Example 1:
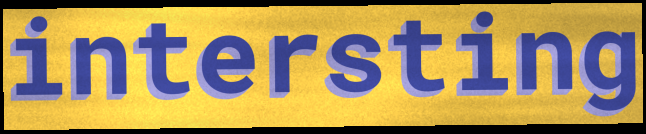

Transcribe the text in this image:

intersting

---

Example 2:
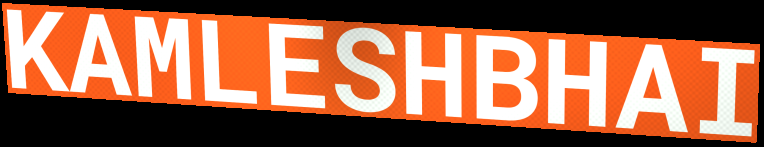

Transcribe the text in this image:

KAMLESHBHAI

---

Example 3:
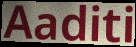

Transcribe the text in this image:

Aaditi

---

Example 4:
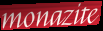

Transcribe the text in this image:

monazite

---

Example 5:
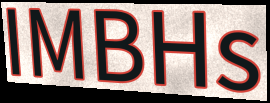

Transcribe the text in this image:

IMBHs